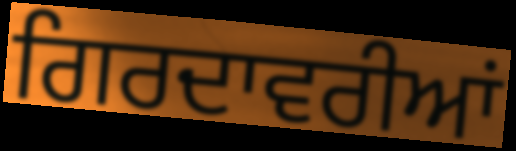
ਗਿਰਦਾਵਰੀਆਂ